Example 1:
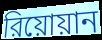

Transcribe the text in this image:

রিয়োয়ান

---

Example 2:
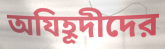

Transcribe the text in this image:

অযিহূদীদের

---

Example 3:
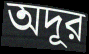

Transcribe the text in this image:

অদূর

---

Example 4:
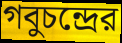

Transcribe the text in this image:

গবুচন্দ্রের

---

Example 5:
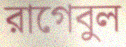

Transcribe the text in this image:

রাগেবুল